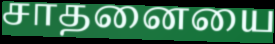
சாதனையை